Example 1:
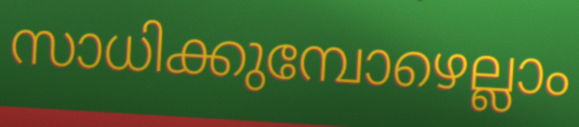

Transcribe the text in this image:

സാധിക്കുമ്പോഴെല്ലാം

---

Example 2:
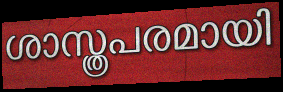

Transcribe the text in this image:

ശാസ്ത്രപരമായി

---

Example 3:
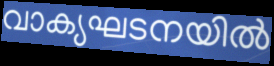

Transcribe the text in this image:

വാക്യഘടനയിൽ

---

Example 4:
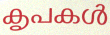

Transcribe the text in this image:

കൃപകൾ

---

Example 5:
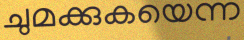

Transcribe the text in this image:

ചുമക്കുകയെന്ന